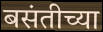
बसंतीच्या